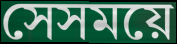
সেসময়ে